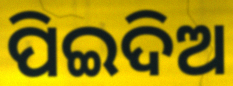
ପିଇଦିଅ